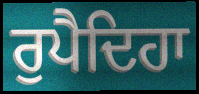
ਰੁਪੈਦਿਹਾ